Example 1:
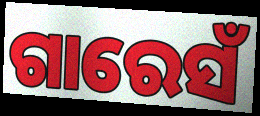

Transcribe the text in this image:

ଗାରେସଁ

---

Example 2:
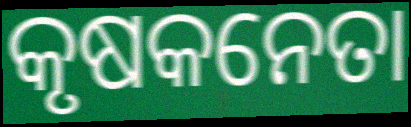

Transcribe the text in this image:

କୃଷକନେତା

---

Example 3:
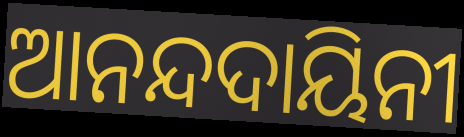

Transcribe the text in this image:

ଆନନ୍ଦଦାୟିନୀ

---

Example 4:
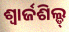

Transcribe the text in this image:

ଶ୍ୱାର୍ଜଶିଲ୍ଡ୍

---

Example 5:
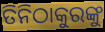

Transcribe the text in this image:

ତିନିଠାକୁରଙ୍କୁ